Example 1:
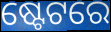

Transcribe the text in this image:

ଷ୍ଟେଟରେ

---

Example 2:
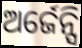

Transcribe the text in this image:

ଅର୍ଜେନ୍ସି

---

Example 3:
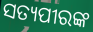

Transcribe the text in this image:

ସତ୍ୟପୀରଙ୍କ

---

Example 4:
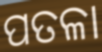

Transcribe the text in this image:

ପତଳା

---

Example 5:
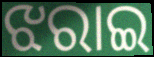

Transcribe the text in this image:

ଝରାଇ